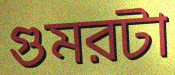
গুমরটা